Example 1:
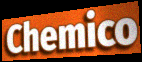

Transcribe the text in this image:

Chemico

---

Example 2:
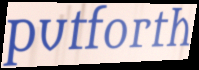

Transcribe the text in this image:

putforth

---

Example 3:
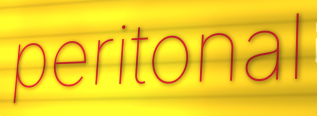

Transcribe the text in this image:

peritonal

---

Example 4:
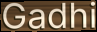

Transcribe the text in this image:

Gadhi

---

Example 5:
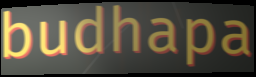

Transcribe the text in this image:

budhapa